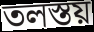
তলস্তয়